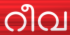
റീവ